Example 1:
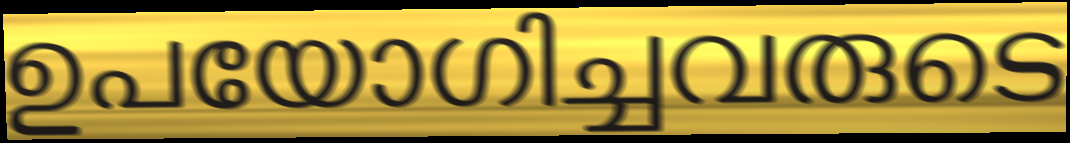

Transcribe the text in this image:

ഉപയോഗിച്ചവരുടെ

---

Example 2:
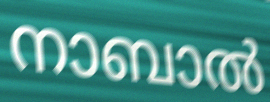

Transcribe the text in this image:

നാബാൽ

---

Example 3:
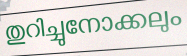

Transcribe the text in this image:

തുറിച്ചുനോക്കലും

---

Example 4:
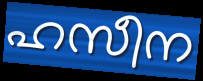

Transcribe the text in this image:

ഹസീന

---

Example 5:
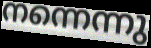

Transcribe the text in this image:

നന്നെന്നു